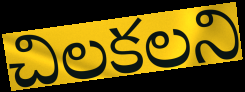
చిలకలని